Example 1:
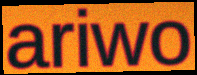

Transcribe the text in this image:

ariwo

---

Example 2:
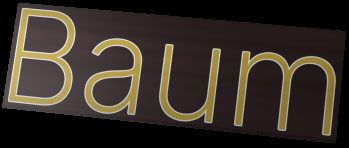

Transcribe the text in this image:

Baum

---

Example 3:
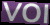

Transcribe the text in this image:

VOI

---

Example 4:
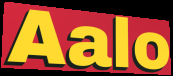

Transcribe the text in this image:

Aalo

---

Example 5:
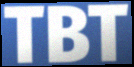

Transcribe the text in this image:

TBT